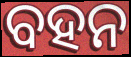
ବହନ